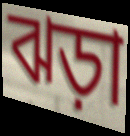
ঝড়া